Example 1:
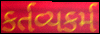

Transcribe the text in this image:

કર્તવ્યકર્મ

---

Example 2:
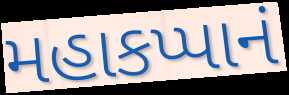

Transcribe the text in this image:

મહાકપ્પાનં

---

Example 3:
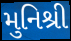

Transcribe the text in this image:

મુનિશ્રી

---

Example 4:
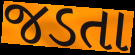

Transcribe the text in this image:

જડતા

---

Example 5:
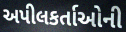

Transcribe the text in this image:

અપીલકર્તાઓની